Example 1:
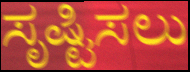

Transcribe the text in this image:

ಸೃಷ್ಟಿಸಲು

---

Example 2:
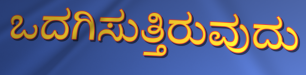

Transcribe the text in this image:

ಒದಗಿಸುತ್ತಿರುವುದು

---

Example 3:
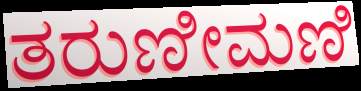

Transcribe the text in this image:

ತರುಣೀಮಣಿ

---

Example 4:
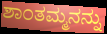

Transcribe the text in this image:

ಶಾಂತಮ್ಮನನ್ನು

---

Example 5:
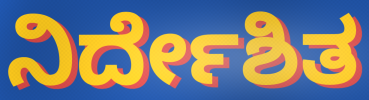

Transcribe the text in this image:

ನಿರ್ದೇಶಿತ